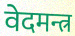
वेदमन्त्र